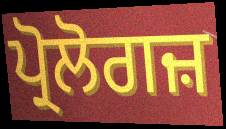
ਪ੍ਰੋਲੋਗਜ਼